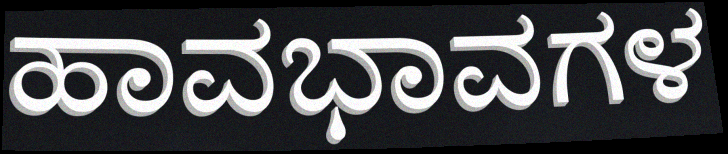
ಹಾವಭಾವಗಳ